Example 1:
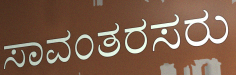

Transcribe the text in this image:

ಸಾವಂತರಸರು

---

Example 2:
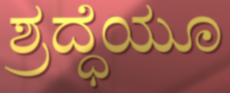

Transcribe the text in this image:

ಶ್ರದ್ಧೆಯೂ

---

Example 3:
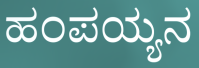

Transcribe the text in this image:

ಹಂಪಯ್ಯನ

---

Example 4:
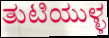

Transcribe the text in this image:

ತುಟಿಯುಳ್ಳ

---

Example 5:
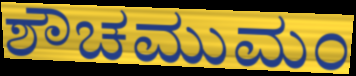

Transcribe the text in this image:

ಶೌಚಮುಮಂ